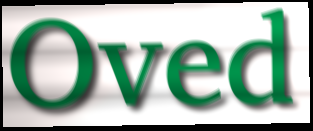
Oved